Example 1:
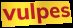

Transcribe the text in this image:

vulpes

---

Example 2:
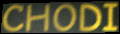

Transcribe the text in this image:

CHODI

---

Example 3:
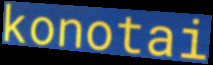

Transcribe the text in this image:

konotai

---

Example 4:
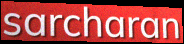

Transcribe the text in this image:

sarcharan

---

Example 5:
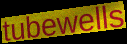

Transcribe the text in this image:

tubewells